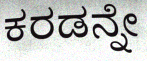
ಕರಡನ್ನೇ